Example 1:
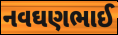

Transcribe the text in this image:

નવઘણભાઈ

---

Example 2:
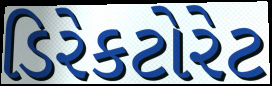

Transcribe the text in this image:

ડિરેકટોરેટ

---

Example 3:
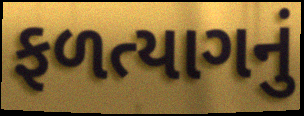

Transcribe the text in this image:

ફળત્યાગનું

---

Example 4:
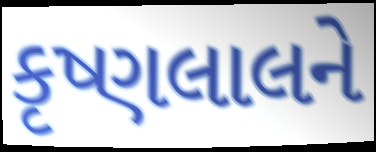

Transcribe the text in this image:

કૃષ્ણલાલને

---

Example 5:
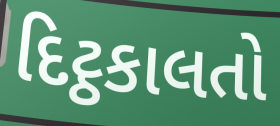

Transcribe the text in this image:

દિટ્ઠકાલતો